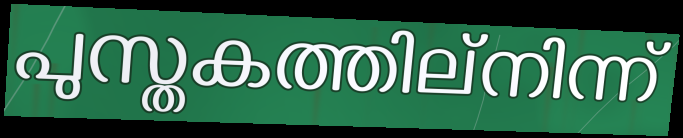
പുസ്തകത്തില്നിന്ന്